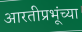
आरतीप्रभूंच्या